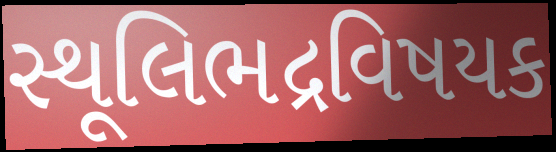
સ્થૂલિભદ્રવિષયક